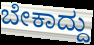
ಬೇಕಾದ್ದು